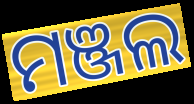
ମଞ୍ଜଲ